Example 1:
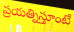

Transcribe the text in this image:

ప్రయత్నిస్తూంటే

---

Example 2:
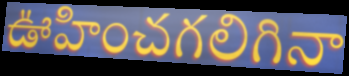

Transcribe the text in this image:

ఊహించగలిగినా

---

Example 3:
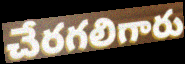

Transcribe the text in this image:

చేరగలిగారు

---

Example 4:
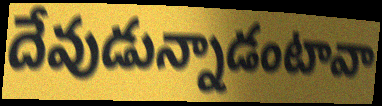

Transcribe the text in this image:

దేవుడున్నాడంటావా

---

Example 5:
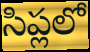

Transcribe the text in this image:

సిప్లలో